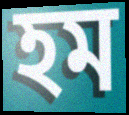
হম